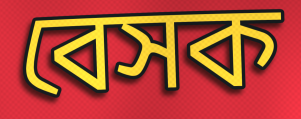
বেসক